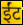
ईंट